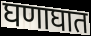
घणाघात